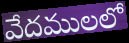
వేదములలో